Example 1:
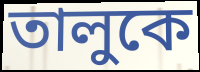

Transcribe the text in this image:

তালুকে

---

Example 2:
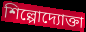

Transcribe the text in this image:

শিল্পোদ্যোক্তা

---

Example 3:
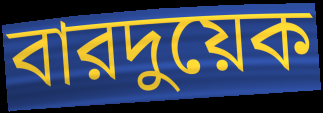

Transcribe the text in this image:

বারদুয়েক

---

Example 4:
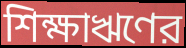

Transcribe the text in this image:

শিক্ষাঋণের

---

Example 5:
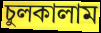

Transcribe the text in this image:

চুলকালাম